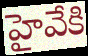
హైవేకి